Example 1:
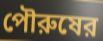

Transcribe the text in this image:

পৌরুষের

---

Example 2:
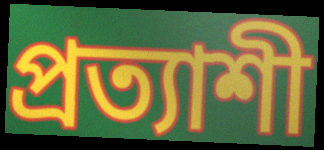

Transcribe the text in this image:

প্রত্যাশী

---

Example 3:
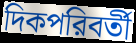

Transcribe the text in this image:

দিকপরিবর্তী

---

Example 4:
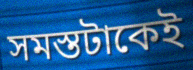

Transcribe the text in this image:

সমস্তটাকেই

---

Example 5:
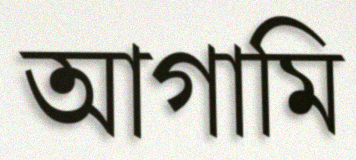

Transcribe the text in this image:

আগামি